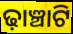
ଢ଼ାଞ୍ଚାଟି